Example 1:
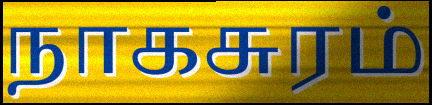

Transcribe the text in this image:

நாகசுரம்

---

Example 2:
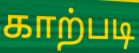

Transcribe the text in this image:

காற்படி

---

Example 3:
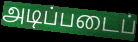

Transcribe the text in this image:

அடிப்படைப்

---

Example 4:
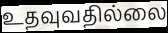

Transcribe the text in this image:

உதவுவதில்லை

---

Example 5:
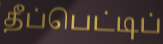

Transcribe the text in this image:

தீப்பெட்டிப்